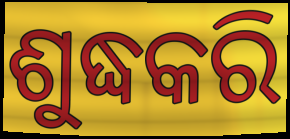
ଶୁଦ୍ଧକରି